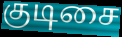
குடிசை